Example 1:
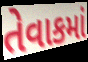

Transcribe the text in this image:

તેવાકમાં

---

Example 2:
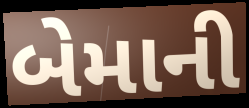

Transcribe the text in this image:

બેમાની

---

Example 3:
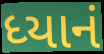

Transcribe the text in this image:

ધ્યાનં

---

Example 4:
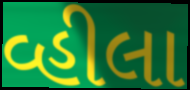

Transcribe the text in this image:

વ્હીલા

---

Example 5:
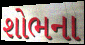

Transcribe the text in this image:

શોભના